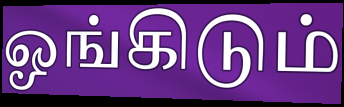
ஓங்கிடும்